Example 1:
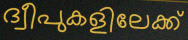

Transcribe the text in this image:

ദ്വീപുകളിലേക്ക്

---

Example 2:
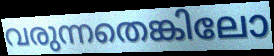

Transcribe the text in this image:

വരുന്നതെങ്കിലോ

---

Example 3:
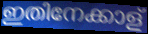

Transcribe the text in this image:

ഇതിനേക്കാള്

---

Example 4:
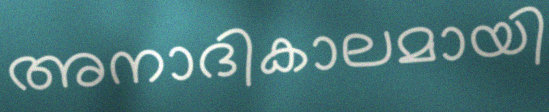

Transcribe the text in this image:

അനാദികാലമായി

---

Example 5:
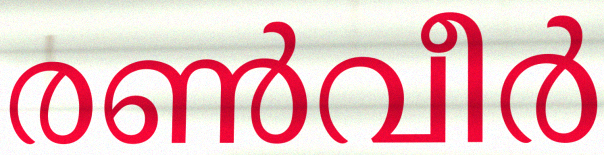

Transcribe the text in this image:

രൺവീർ